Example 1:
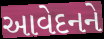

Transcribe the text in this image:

આવેદનને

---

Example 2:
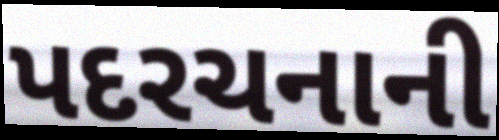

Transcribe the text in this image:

પદરચનાની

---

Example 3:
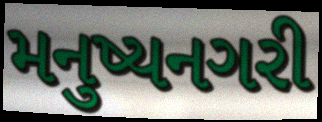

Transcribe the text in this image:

મનુષ્યનગરી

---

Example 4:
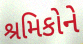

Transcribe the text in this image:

શ્રમિકોને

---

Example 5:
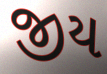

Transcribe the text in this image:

જીય